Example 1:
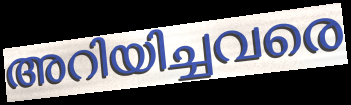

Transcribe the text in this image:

അറിയിച്ചവരെ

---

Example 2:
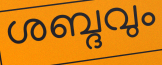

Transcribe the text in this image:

ശബ്ദവും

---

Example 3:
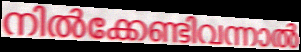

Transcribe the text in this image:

നിൽക്കേണ്ടിവന്നാൽ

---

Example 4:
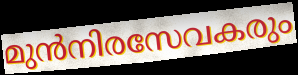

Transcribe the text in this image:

മുൻനിരസേവകരും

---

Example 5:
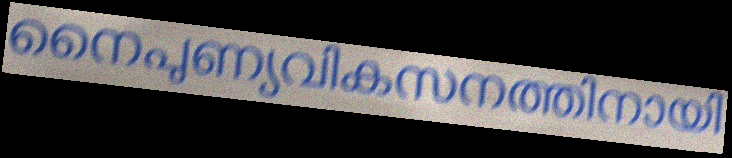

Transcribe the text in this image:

നൈപുണ്യവികസനത്തിനായി